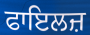
ਫਾਇਲਜ਼